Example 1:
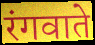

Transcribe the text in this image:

रंगवाते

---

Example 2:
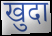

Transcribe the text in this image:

खुदा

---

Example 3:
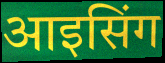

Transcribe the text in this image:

आइसिंग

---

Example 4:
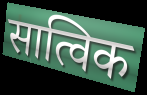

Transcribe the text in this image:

सात्विक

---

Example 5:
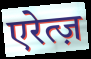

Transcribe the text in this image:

एरेत्ज़